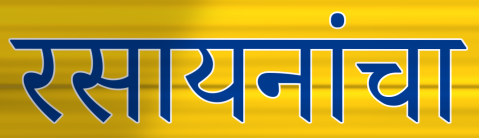
रसायनांचा